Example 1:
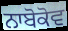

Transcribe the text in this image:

ਨਾਬੋਕੋਵ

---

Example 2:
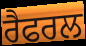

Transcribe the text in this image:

ਰੈਫਰਲ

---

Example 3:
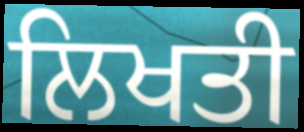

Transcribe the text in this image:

ਲਿਖਤੀ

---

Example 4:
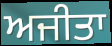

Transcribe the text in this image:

ਅਜੀਤਾ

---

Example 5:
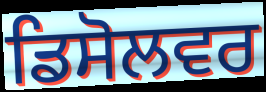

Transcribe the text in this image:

ਡਿਸੋਲਵਰ